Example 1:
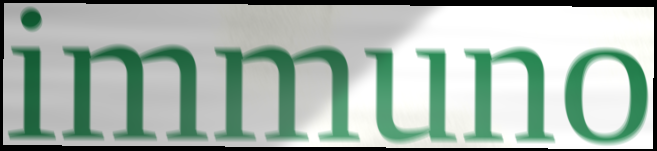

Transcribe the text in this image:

immuno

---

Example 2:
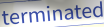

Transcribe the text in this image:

terminated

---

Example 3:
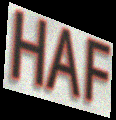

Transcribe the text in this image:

HAF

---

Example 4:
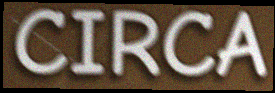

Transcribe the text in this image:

CIRCA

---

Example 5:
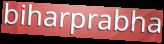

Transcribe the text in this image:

biharprabha